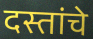
दस्तांचे